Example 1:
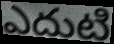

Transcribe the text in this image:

ఎదుటి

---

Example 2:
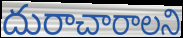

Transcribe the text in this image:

దురాచారాలని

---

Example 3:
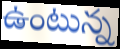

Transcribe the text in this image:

ఉంటున్న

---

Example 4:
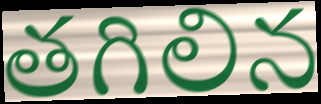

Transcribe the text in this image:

తగిలిన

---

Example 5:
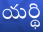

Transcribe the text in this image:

యర్థి